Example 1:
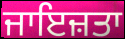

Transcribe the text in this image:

ਜਾਇਜ਼ਤਾ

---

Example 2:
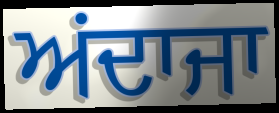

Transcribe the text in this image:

ਅਂਦਾਜਾ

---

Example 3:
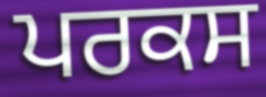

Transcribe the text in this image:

ਪਰਕਸ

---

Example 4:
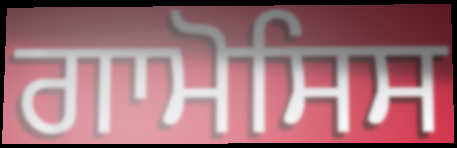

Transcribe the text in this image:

ਗਾਮੋਸਿਸ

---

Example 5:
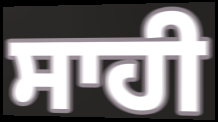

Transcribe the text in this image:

ਸਾਹੀ